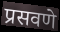
प्रसवणे